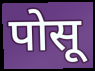
पोसू